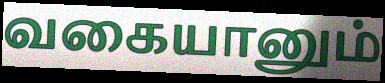
வகையானும்